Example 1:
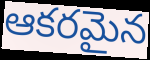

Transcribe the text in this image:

ఆకరమైన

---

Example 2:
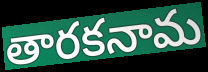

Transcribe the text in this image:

తారకనామ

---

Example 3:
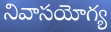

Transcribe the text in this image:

నివాసయోగ్య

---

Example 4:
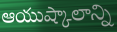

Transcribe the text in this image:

ఆయుష్కాలాన్ని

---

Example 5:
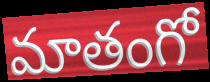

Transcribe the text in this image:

మాతంగో